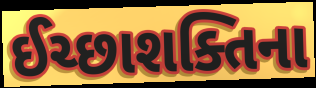
ઈચ્છાશક્તિના